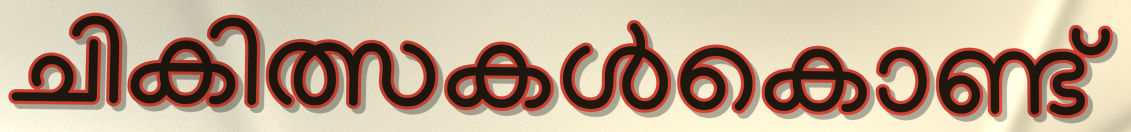
ചികിത്സകൾകൊണ്ട്